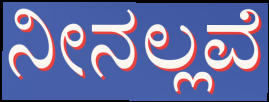
ನೀನಲ್ಲವೆ